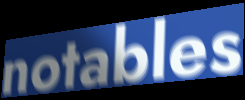
notables